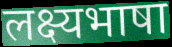
लक्ष्यभाषा